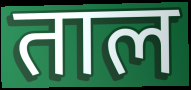
ताल